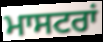
ਮਾਸਟਰਾਂ